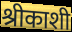
श्रीकाशी